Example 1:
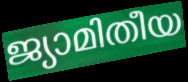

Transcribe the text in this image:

ജ്യാമിതീയ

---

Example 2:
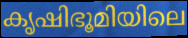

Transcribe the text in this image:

കൃഷിഭൂമിയിലെ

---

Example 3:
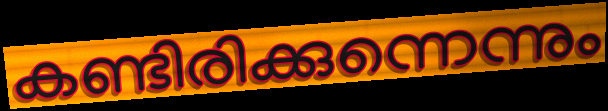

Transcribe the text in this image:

കണ്ടിരിക്കുന്നെന്നും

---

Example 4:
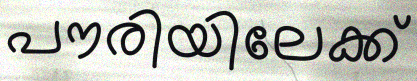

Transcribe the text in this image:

പൗരിയിലേക്ക്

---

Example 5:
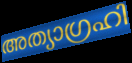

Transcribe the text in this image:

അത്യാഗ്രഹി